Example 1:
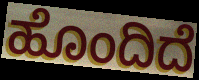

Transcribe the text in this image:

ಹೊಂದಿದೆ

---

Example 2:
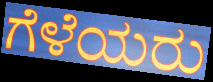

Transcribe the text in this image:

ಗೆಳೆಯರು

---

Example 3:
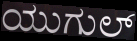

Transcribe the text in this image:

ಯುಗುಲ್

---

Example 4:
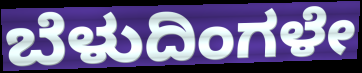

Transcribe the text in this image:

ಬೆಳುದಿಂಗಳೇ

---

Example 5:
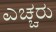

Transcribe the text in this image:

ಎಚ್ಚರು